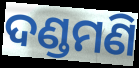
ଦଣ୍ଡମଣି